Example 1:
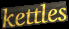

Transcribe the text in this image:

kettles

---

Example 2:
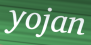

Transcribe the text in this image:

yojan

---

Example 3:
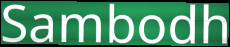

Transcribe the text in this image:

Sambodh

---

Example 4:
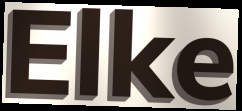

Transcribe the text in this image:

Elke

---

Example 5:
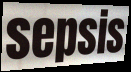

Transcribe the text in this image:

sepsis